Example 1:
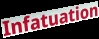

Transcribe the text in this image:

Infatuation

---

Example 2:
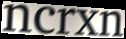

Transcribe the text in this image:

ncrxn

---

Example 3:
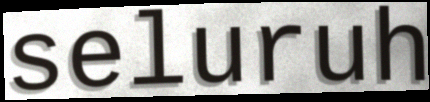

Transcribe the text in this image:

seluruh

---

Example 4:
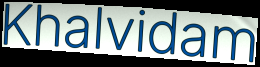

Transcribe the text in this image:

Khalvidam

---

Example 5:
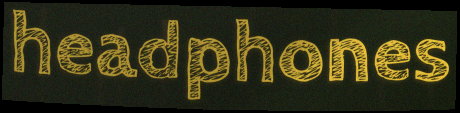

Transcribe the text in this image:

headphones